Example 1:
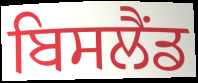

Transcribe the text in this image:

ਬਿਸਲੈਂਡ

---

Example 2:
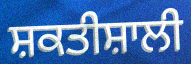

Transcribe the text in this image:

ਸ਼ਕਤੀਸ਼ਾਲੀ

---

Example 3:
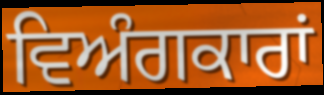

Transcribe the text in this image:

ਵਿਅੰਗਕਾਰਾਂ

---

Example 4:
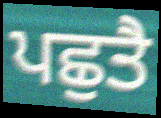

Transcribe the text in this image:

ਪਛੁਤੈ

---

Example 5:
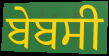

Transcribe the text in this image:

ਬੇਬਸੀ